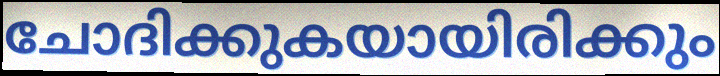
ചോദിക്കുകയായിരിക്കും